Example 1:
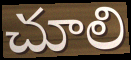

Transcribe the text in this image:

చూలి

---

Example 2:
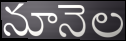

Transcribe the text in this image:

నూనెల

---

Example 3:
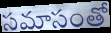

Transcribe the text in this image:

సమాసంతో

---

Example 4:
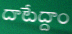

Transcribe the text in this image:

దాటేద్దాం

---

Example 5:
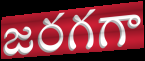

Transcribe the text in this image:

జరగగా